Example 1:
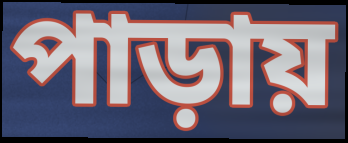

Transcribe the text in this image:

পাড়ায়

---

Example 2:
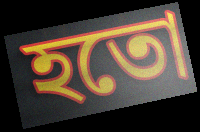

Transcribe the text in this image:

হতো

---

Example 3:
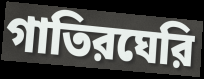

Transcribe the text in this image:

গাতিরঘেরি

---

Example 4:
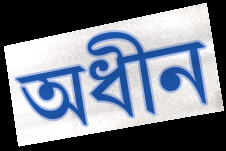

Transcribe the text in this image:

অধীন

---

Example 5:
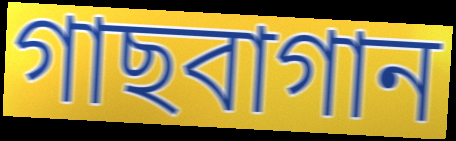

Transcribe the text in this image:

গাছবাগান